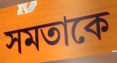
সমতাকে